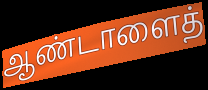
ஆண்டாளைத்